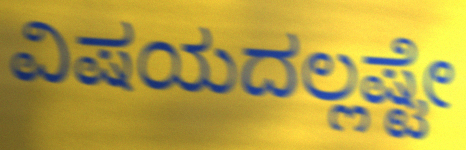
ವಿಷಯದಲ್ಲಷ್ಟೇ